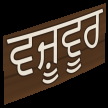
ਵਜ਼ੂਵੂਰ